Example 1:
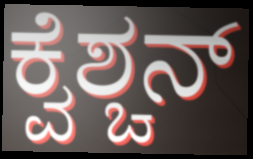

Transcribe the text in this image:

ಕ್ವೆಶ್ಚನ್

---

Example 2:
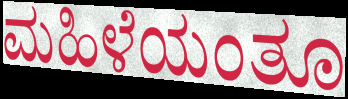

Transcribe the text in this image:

ಮಹಿಳೆಯಂತೂ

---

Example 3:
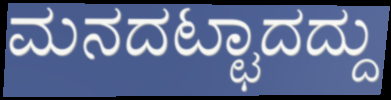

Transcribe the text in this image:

ಮನದಟ್ಟಾದದ್ದು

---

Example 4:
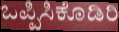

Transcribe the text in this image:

ಒಪ್ಪಿಸಿಕೊಡಿರಿ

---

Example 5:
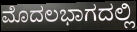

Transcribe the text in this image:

ಮೊದಲಭಾಗದಲ್ಲಿ